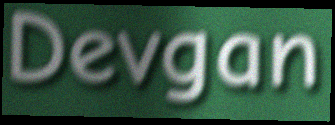
Devgan